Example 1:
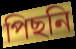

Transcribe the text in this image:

পিছনি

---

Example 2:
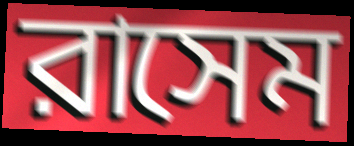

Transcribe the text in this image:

রাসেম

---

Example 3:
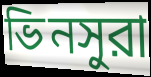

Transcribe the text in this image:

ভিনসুরা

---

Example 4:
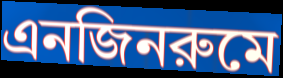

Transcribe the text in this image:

এনজিনরুমে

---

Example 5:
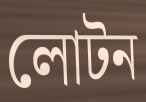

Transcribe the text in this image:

লোটন